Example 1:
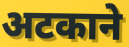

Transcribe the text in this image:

अटकाने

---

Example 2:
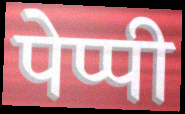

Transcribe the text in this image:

पेप्पी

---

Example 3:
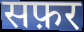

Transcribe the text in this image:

सफ़र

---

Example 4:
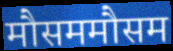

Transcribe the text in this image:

मौसममौसम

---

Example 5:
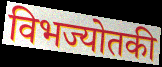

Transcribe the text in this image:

विभज्योतकी